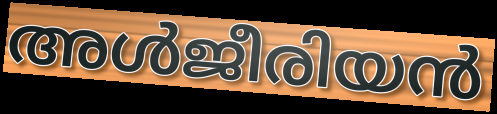
അൾജീരിയൻ